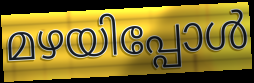
മഴയിപ്പോൾ